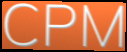
CPM